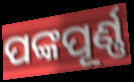
ପଙ୍କପୂର୍ଣ୍ଣ